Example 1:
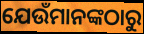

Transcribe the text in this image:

ଯେଉଁମାନଙ୍କଠାରୁ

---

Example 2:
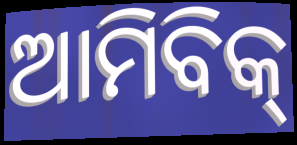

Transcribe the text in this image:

ଆମିବିକ୍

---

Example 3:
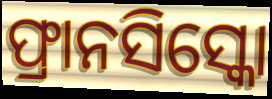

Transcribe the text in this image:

ଫ୍ରାନସିସ୍କୋ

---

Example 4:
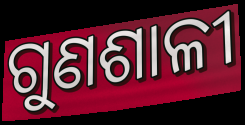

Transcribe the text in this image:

ଗୁଣଶାଳୀ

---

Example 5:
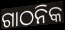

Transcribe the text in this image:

ଗାଠନିକ